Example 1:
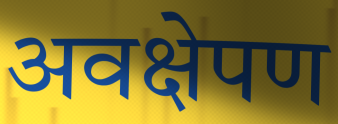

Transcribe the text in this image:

अवक्षेपण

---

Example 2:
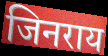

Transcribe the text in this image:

जिनराय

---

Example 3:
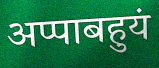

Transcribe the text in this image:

अप्पाबहुयं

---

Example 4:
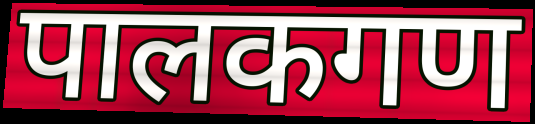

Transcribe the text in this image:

पालकगण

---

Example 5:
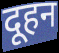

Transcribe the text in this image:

दूहन